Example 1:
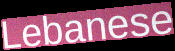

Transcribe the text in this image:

Lebanese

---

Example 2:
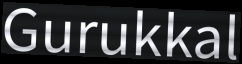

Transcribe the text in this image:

Gurukkal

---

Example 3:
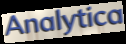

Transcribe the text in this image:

Analytica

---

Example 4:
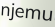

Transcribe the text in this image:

njemu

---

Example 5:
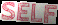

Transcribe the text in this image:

SELF